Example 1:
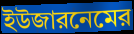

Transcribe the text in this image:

ইউজারনেমের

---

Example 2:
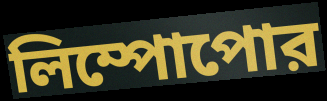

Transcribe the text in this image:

লিম্পোপোর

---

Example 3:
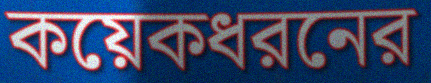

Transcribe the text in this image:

কয়েকধরনের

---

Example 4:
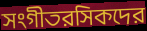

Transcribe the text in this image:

সংগীতরসিকদের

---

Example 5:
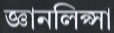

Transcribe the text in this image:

জ্ঞানলিপ্সা